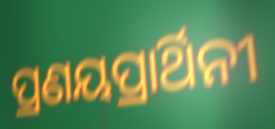
ପ୍ରଣୟପ୍ରାର୍ଥିନୀ